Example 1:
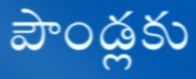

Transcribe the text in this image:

పౌండ్లకు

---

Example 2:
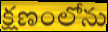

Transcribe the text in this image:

క్షణంలోను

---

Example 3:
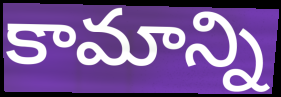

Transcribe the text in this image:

కామాన్ని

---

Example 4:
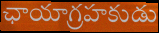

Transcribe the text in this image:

ఛాయాగ్రహకుడు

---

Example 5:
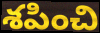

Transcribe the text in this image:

శపించి